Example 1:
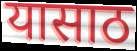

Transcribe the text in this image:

यासाठ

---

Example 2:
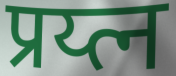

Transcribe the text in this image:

प्रय्त्न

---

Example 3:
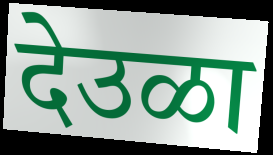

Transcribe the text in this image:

देउळा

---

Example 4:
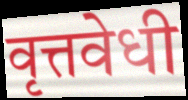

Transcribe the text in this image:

वृत्तवेधी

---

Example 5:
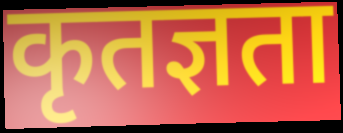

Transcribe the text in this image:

कृतज्ञता